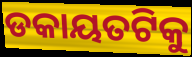
ଡକାୟତଟିକୁ